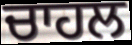
ਚਾਹਲ